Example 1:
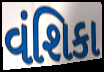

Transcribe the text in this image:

વંશિકા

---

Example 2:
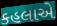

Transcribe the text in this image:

કહલાએ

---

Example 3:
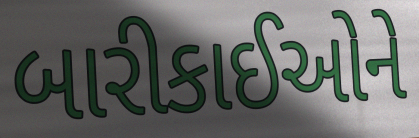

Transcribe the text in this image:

બારીકાઈઓને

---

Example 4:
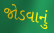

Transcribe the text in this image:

જોડવાનું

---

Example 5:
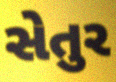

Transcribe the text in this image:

સેતુર